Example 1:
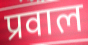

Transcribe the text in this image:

प्रवाल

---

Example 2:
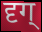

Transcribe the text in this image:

दृग्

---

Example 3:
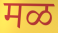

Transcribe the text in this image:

मळ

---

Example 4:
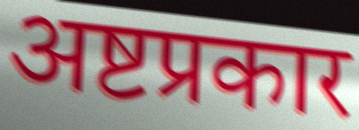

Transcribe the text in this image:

अष्टप्रकार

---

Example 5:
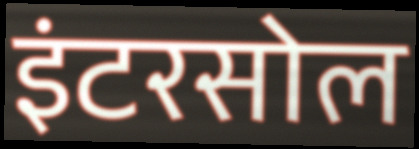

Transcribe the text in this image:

इंटरसोल